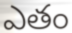
ఎతం